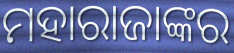
ମହାରାଜାଙ୍କର